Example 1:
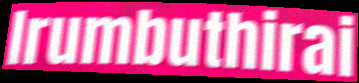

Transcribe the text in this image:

Irumbuthirai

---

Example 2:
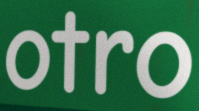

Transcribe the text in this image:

otro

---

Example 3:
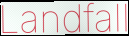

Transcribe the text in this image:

Landfall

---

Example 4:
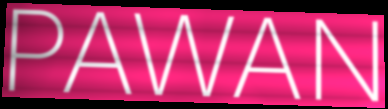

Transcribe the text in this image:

PAWAN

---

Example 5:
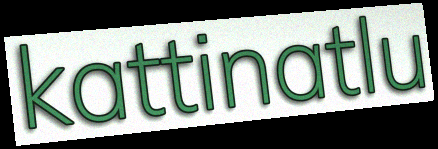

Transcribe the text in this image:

kattinatlu